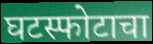
घटस्फोटाचा